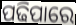
ପଢିପାରେ